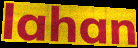
lahan